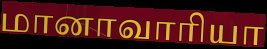
மானாவாரியா